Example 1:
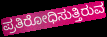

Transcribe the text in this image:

ಪ್ರತಿರೋಧಿಸುತ್ತಿರುವ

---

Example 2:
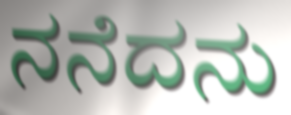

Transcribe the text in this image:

ನನೆದನು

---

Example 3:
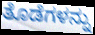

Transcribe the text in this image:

ತೊಡೆಗಳನ್ನು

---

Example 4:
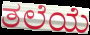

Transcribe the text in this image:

ತಲೆಯೆ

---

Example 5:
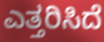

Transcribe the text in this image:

ಎತ್ತರಿಸಿದೆ